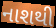
નાશથી